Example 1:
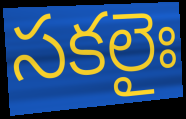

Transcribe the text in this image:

సకలైః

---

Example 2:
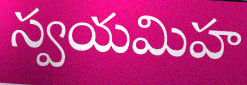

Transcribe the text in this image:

స్వయమిహ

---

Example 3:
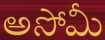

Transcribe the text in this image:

అసోమీ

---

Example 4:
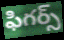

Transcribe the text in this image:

ఫిగర్స్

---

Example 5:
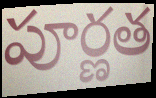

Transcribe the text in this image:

పూర్ణత